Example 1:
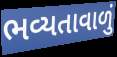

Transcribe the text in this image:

ભવ્યતાવાળું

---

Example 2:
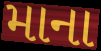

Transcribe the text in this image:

માના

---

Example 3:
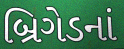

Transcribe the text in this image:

બ્રિગેડનાં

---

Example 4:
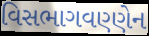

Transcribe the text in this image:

વિસભાગવણ્ણેન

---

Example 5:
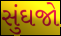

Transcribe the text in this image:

સુંઘજો